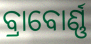
ବ୍ରାବୋର୍ଣ୍ଣ